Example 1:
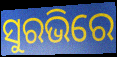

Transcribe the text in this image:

ସୁରଭିରେ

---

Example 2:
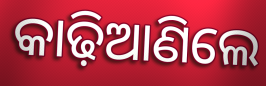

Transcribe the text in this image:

କାଢ଼ିଆଣିଲେ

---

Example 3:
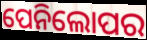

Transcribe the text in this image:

ପେନିଲୋପର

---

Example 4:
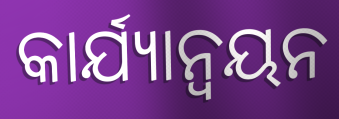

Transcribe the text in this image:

କାର୍ଯ୍ୟାନ୍ୱୟନ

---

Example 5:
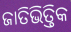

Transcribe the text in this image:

ଜାତିଭିତ୍ତିକ